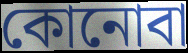
কোনোবা